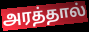
அரத்தால்